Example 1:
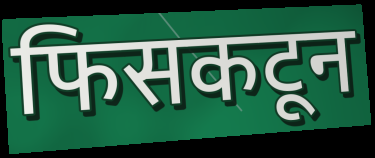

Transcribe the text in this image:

फिसकटून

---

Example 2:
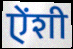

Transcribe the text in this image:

ऐंशी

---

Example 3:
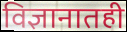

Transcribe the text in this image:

विज्ञानातही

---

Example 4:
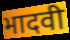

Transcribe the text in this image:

भादवी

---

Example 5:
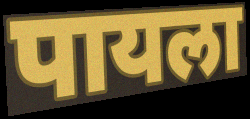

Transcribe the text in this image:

पायला